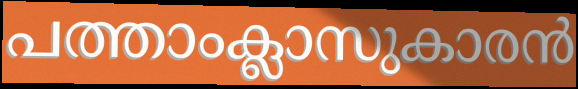
പത്താംക്ലാസുകാരൻ